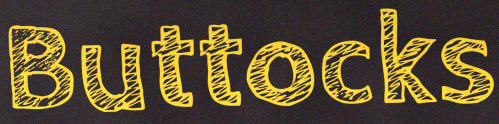
Buttocks